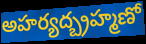
అహర్యద్బ్రహ్మణో